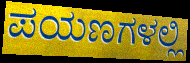
ಪಯಣಗಳಲ್ಲಿ